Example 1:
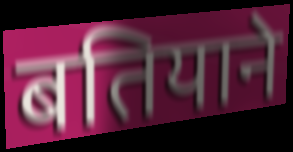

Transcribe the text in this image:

बतियाने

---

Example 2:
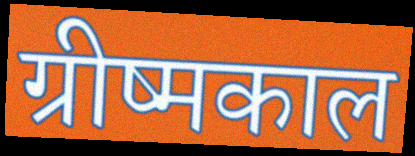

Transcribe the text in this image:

ग्रीष्मकाल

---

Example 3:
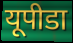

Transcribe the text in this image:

यूपीडा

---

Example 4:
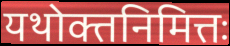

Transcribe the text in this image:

यथोक्तनिमित्तः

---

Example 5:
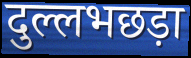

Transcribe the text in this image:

दुल्लभछड़ा